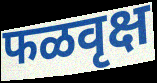
फळवृक्ष